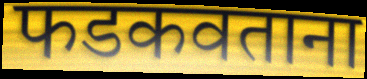
फडकवताना